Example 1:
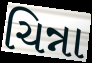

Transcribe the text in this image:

ચિન્ના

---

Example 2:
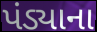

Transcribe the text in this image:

પંડ્યાના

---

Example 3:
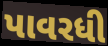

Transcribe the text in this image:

પાવરધી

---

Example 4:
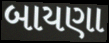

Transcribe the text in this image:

બાયણા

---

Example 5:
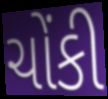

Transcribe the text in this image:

ચોંકી